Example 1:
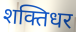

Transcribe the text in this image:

शक्तिधर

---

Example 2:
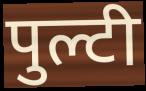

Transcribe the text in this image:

पुल्टी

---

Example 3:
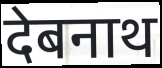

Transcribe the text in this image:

देबनाथ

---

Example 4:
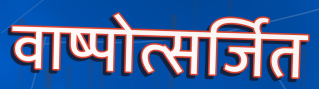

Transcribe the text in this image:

वाष्पोत्सर्जित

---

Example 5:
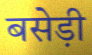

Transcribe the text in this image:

बसेड़ी